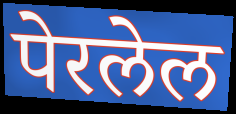
पेरलेल